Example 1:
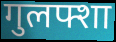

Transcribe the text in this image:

गुलफ्शा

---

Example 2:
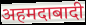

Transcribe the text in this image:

अहमदाबादी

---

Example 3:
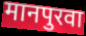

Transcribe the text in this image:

मानपुरवा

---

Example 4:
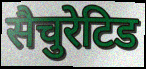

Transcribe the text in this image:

सैचुरेटिड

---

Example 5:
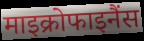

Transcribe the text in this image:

माइक्रोफाइनैंस